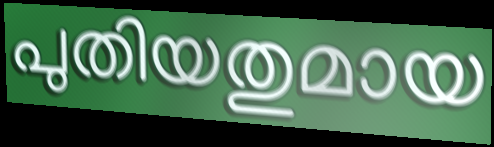
പുതിയതുമായ